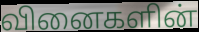
வினைகளின்